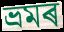
ভ্ৰমৰ